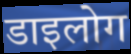
डाइलोग